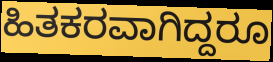
ಹಿತಕರವಾಗಿದ್ದರೂ